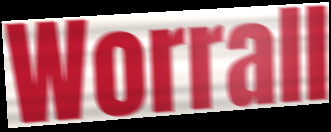
Worrall